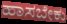
ಹಾಸಬೇಕು